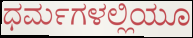
ಧರ್ಮಗಳಲ್ಲಿಯೂ